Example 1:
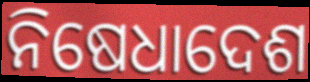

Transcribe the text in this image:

ନିଷେଧାଦେଶ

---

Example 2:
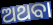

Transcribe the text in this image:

ଅଥବା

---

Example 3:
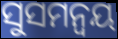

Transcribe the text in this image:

ସୁସମନ୍ଵୟ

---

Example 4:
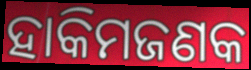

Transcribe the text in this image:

ହାକିମଜଣକ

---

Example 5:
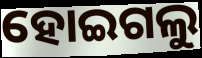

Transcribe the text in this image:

ହୋଇଗଲୁ